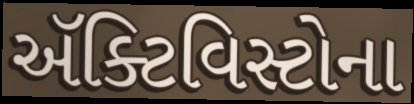
ઍક્ટિવિસ્ટોના